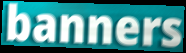
banners